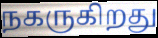
நகருகிறது